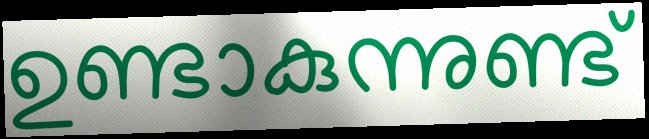
ഉണ്ടാകുന്നുണ്ട്